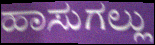
ಹಾಸುಗಲ್ಲು